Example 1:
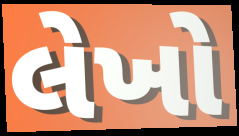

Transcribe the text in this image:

લેખો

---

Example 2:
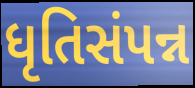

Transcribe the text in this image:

ધૃતિસંપન્ન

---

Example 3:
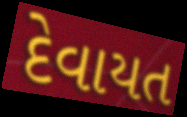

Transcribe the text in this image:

દેવાયત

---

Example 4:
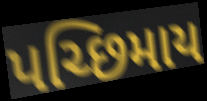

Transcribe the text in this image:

પચ્છિમાય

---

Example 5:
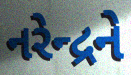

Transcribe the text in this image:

નરેન્દ્રને